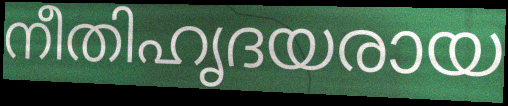
നീതിഹൃദയരായ